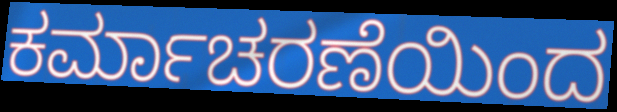
ಕರ್ಮಾಚರಣೆಯಿಂದ